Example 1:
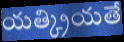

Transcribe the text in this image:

యత్క్రియతే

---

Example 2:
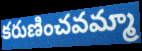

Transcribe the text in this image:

కరుణించవమ్మా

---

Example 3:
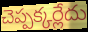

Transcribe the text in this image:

చెప్పక్కర్లేదు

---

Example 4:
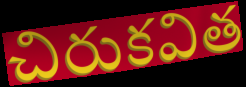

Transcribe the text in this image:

చిరుకవిత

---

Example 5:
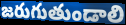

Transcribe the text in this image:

జరుగుతుండాలి